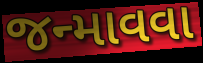
જન્માવવા